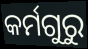
କର୍ମଗୁରୁ